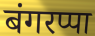
बंगरप्पा